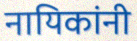
नायिकांनी